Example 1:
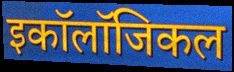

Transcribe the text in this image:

इकॉलॉजिकल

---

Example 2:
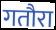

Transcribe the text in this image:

गतौरा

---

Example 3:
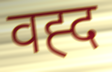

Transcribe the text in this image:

वह्द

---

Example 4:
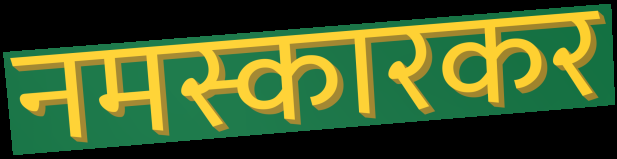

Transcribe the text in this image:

नमस्कारकर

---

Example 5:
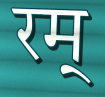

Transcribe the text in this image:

रम्